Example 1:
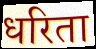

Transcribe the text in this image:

धरिता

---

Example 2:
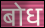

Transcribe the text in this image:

बोध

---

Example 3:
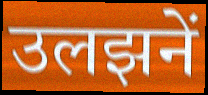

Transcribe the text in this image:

उलझनें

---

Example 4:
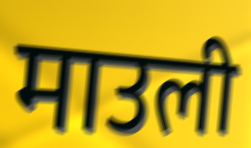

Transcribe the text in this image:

माउली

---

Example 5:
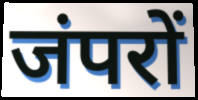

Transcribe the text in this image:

जंपरों